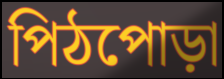
পিঠপোড়া